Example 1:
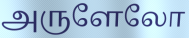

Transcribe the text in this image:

அருளேலோ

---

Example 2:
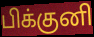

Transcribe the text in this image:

பிக்குனி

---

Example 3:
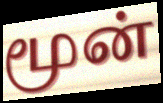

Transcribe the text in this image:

மூன்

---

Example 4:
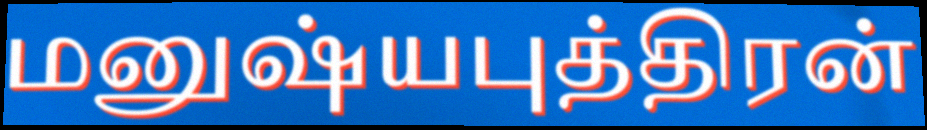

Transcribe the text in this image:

மனுஷ்யபுத்திரன்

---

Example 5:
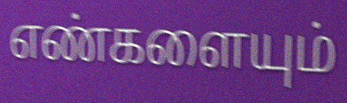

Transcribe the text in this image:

எண்களையும்